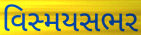
વિસ્મયસભર